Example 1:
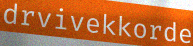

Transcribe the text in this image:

drvivekkorde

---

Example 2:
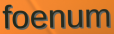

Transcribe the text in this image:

foenum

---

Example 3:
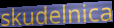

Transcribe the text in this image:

skudelnica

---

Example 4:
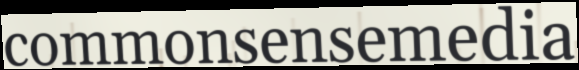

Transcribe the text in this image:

commonsensemedia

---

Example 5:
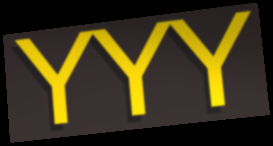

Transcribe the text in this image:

YYY